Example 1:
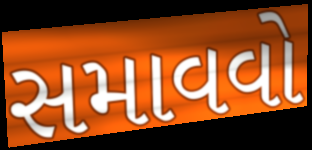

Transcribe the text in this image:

સમાવવો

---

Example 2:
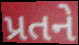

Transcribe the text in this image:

પ્રતને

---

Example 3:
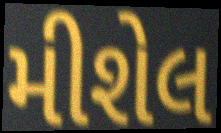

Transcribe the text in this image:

મીશેલ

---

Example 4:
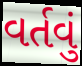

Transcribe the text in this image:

વર્તવું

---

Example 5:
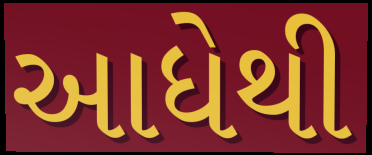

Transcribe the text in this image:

આધેથી